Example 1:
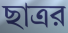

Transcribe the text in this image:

ছাত্রর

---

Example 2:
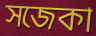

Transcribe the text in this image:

সজেকা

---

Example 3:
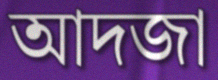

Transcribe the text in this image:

আদজা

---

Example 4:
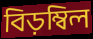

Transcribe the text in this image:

বিড়ম্বিল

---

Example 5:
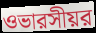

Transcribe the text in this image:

ওভারসীয়র